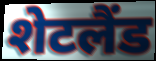
शेटलैंड